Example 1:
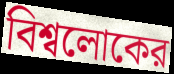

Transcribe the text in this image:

বিশ্বলোকের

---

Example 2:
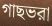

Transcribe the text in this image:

গাছভরা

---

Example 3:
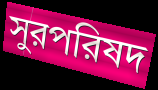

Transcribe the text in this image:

সুরপরিষদ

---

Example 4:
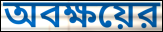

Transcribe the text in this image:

অবক্ষয়ের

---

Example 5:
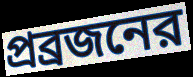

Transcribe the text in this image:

প্রব্রজনের